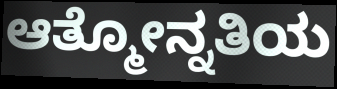
ಆತ್ಮೋನ್ನತಿಯ